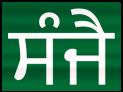
ਸੰਜੈ